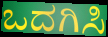
ಒದಗಿಸಿ